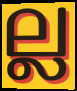
ല്ല